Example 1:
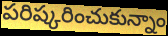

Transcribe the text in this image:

పరిష్కరించుకున్నాం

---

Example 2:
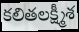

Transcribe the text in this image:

కలితలక్ష్మీశ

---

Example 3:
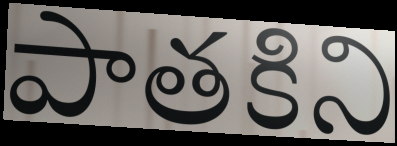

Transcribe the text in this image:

పాతకిని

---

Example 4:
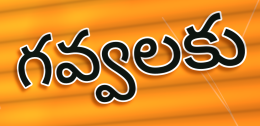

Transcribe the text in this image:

గవ్వలకు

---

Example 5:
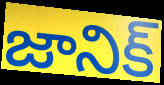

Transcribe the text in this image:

జానిక్